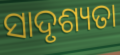
ସାଦୃଶ୍ୟତା